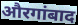
औरगांबाद